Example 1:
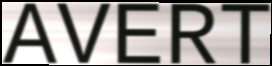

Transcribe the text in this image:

AVERT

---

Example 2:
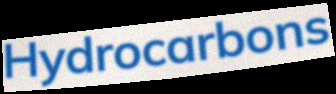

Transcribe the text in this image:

Hydrocarbons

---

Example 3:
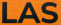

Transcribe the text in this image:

LAS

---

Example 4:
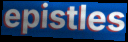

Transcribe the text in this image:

epistles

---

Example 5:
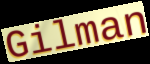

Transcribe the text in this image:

Gilman